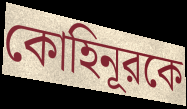
কোহিনূরকে